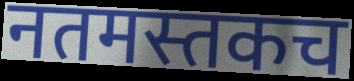
नतमस्तकच